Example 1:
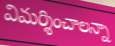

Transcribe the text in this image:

విమర్శించాలన్నా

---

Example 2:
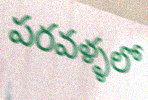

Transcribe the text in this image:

పరవళ్ళలో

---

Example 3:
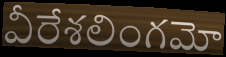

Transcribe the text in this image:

వీరేశలింగమో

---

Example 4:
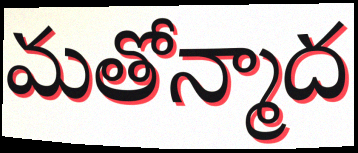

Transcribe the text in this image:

మతోన్మాద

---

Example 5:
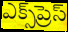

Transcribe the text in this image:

ఎక్స్‌ప్రెస్